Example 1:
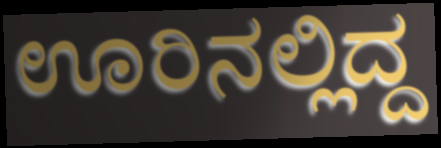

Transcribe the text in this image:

ಊರಿನಲ್ಲಿದ್ದ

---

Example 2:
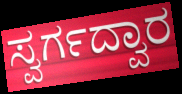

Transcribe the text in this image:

ಸ್ವರ್ಗದ್ವಾರ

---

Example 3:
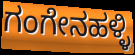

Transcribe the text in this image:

ಗಂಗೇನಹಳ್ಳಿ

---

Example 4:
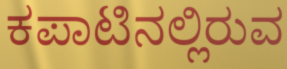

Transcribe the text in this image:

ಕಪಾಟಿನಲ್ಲಿರುವ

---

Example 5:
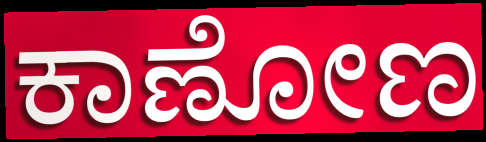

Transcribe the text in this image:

ಕಾಣೋಣ